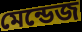
মেন্ডেজ